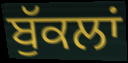
ਬੁੱਕਲਾਂ